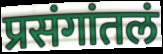
प्रसंगांतलं